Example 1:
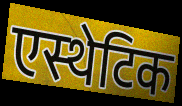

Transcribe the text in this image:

एस्थेटिक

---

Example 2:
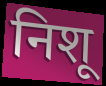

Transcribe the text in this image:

निशू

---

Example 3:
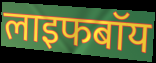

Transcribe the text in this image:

लाइफबॉय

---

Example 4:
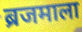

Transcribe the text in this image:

ब्रजमाला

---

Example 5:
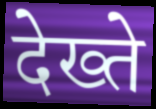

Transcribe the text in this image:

देख्ते